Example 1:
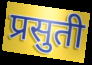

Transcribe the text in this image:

प्रसुती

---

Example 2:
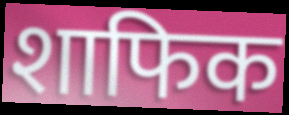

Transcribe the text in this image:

शाफिक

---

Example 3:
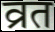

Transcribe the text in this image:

व्रत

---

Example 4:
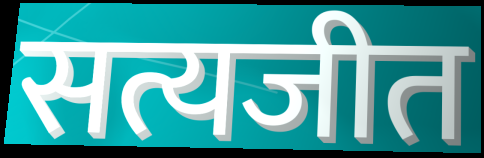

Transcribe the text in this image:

सत्यजीत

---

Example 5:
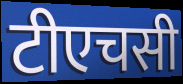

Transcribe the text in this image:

टीएचसी